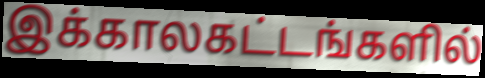
இக்காலகட்டங்களில்